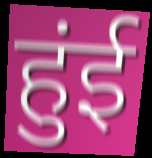
हुंई